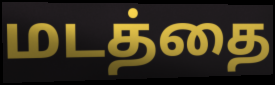
மடத்தை